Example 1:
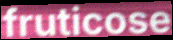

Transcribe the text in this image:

fruticose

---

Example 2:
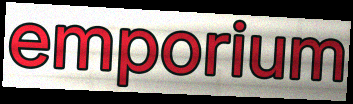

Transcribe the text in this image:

emporium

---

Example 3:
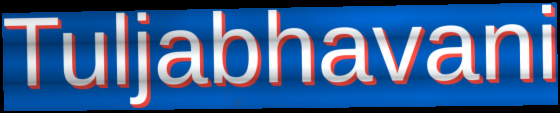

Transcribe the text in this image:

Tuljabhavani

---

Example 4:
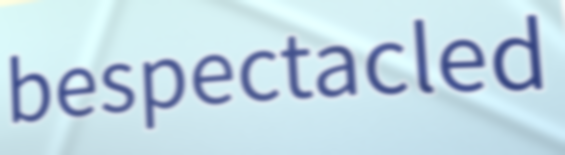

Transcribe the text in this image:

bespectacled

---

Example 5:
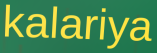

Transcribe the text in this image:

kalariya